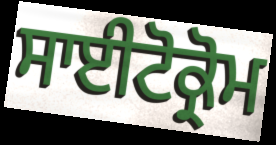
ਸਾਈਟੋਕ੍ਰੋਮ